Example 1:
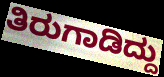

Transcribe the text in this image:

ತಿರುಗಾಡಿದ್ದು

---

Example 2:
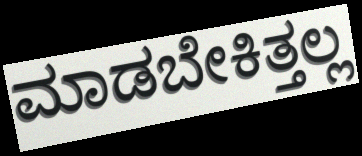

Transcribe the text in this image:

ಮಾಡಬೇಕಿತ್ತಲ್ಲ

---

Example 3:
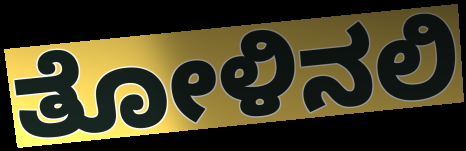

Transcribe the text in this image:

ತೋಳಿನಲಿ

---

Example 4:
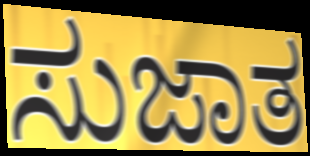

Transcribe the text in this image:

ಸುಜಾತ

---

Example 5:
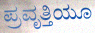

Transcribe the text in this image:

ಪ್ರವೃತ್ತಿಯೂ